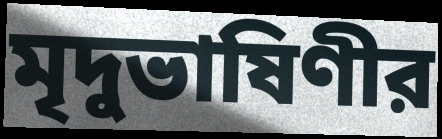
মৃদুভাষিণীর